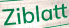
Ziblatt